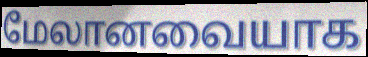
மேலானவையாக